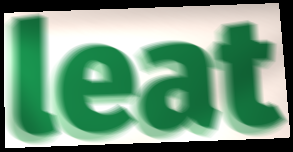
leat